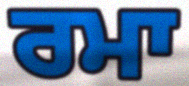
ਰਮਾ